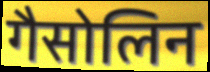
गैसोलिन